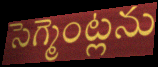
సెగ్మెంట్లను